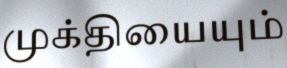
முக்தியையும்